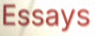
Essays